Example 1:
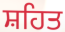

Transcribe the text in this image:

ਸ਼ਹਿਤ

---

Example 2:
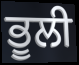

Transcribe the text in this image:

ਭੂਲੀ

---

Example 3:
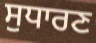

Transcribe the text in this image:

ਸੁਧਾਰਣ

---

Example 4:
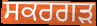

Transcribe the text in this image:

ਸਕਰਗੜ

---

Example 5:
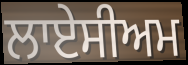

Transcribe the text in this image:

ਲਾਏਸੀਅਮ